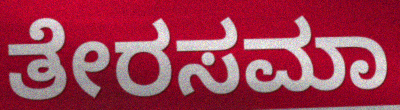
ತೇರಸಮಾ